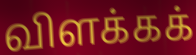
விளக்கக்